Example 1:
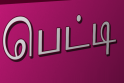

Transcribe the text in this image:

பெட்டி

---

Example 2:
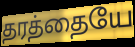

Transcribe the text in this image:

தரத்தையே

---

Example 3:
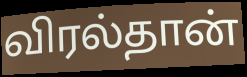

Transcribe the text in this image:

விரல்தான்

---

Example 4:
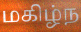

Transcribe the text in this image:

மகிழ்ந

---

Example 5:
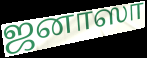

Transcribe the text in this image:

ஜனாஸா